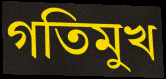
গতিমুখ